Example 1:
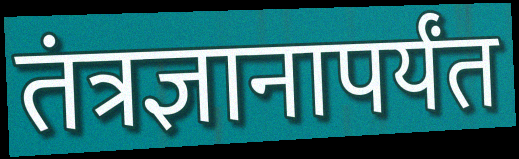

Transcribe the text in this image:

तंत्रज्ञानापर्यंत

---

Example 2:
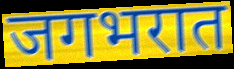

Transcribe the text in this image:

जगभरात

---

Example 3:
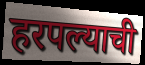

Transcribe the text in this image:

हरपल्याची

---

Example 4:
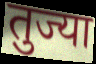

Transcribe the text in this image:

तुज्या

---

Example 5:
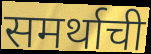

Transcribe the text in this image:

समर्थाची